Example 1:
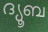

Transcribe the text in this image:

ദ്യൂബ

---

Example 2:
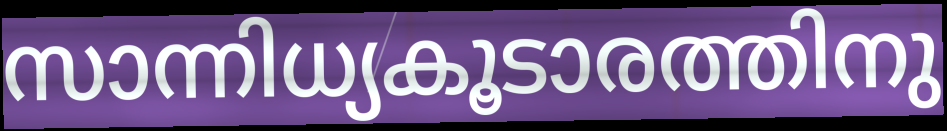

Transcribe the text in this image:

സാന്നിധ്യകൂടാരത്തിനു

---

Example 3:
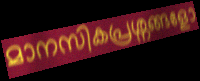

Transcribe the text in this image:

മാനസികപ്രശ്നങ്ങളോ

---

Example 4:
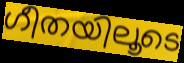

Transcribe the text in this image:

ഗീതയിലൂടെ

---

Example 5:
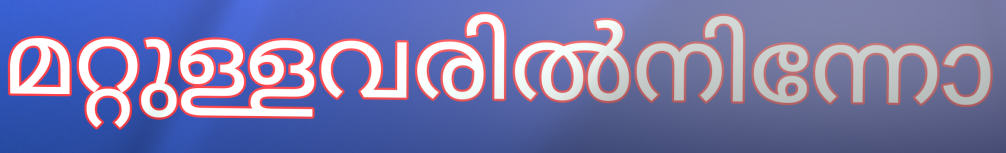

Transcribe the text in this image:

മറ്റുള്ളവരിൽനിന്നോ